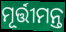
ମୂର୍ତ୍ତୀମନ୍ତ